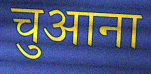
चुआना